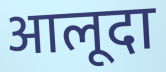
आलूदा